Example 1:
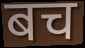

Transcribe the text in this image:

बच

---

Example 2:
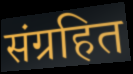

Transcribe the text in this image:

संग्रहित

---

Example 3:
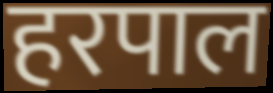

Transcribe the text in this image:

हरपाल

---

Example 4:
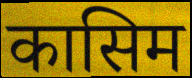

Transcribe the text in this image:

कासिम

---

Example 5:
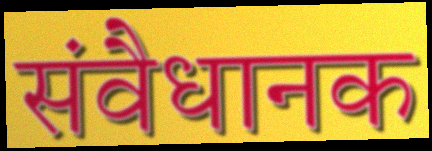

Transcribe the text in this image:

संवैधानक